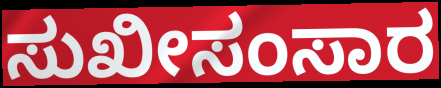
ಸುಖೀಸಂಸಾರ